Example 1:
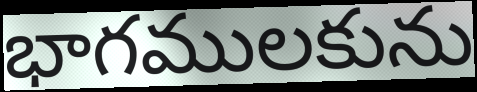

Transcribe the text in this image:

భాగములకును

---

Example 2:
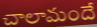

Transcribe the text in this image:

చాలామందే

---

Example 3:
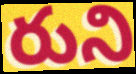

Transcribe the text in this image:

రుని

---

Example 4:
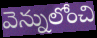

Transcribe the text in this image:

వెన్నులోంచి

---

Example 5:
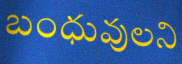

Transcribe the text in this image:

బంధువులని